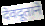
देवदूताने